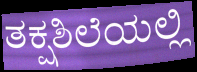
ತಕ್ಷಶಿಲೆಯಲ್ಲಿ